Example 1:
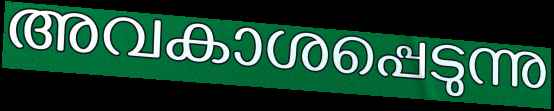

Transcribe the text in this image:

അവകാശപ്പെടുന്നു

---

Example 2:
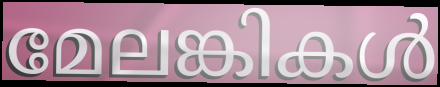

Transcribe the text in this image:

മേലങ്കികൾ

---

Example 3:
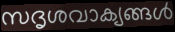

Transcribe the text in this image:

സദൃശവാക്യങ്ങൾ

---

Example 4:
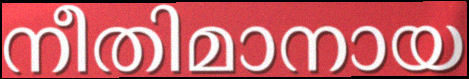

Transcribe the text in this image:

നീതിമാനായ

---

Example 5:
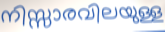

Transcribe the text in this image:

നിസ്സാരവിലയുള്ള